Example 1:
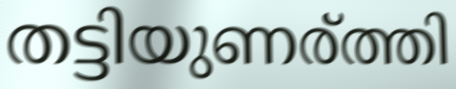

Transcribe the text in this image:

തട്ടിയുണര്ത്തി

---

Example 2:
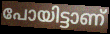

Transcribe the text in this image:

പോയിട്ടാണ്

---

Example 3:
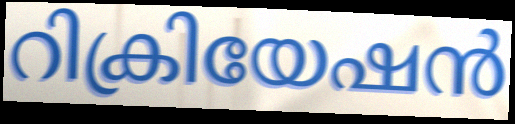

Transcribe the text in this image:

റിക്രിയേഷൻ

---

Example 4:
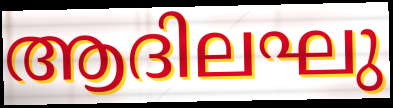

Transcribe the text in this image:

ആദിലഘു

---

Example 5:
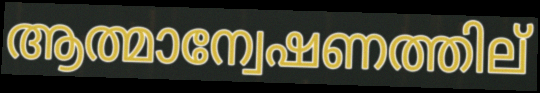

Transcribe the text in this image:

ആത്മാന്വേഷണത്തില്